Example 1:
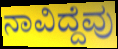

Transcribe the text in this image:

ನಾವಿದ್ದೆವು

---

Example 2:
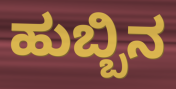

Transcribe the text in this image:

ಹುಬ್ಬಿನ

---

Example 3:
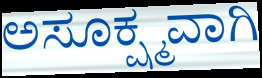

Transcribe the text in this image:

ಅಸೂಕ್ಷ್ಮವಾಗಿ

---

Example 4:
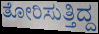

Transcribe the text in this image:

ತೋರಿಸುತ್ತಿದ್ದ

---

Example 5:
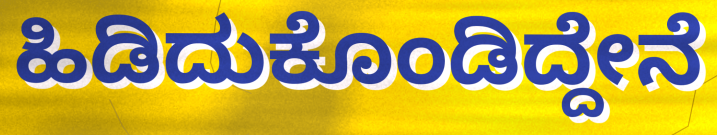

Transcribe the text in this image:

ಹಿಡಿದುಕೊಂಡಿದ್ದೇನೆ